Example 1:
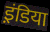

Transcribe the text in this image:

इ़ंडिया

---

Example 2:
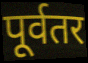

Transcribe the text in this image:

पूर्वतर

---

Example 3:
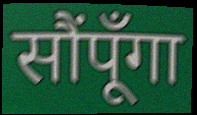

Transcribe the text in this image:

सौंपूँगा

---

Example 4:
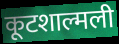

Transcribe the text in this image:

कूटशाल्मली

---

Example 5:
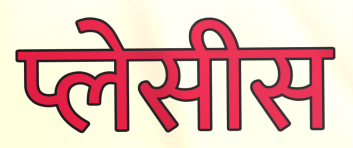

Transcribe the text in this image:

प्लेसीस